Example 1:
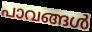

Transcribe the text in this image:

പാവങ്ങൾ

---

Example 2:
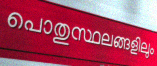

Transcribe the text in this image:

പൊതുസ്ഥലങ്ങളിലും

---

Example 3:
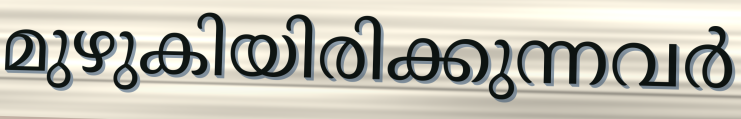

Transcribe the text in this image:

മുഴുകിയിരിക്കുന്നവർ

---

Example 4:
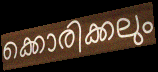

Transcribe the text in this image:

ക്കൊരിക്കലും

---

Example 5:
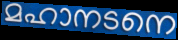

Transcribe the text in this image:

മഹാനടനെ